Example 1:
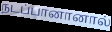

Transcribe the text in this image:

நடப்பானானால்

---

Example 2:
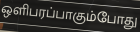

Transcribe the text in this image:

ஒளிபரப்பாகும்போது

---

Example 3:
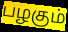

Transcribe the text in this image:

பழகும்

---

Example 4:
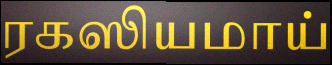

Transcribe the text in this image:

ரகஸியமாய்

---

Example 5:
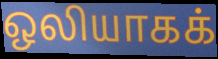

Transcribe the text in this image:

ஒலியாகக்